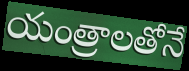
యంత్రాలతోనే